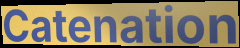
Catenation